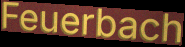
Feuerbach